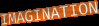
IMAGINATION